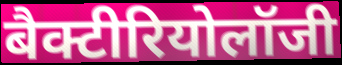
बैक्टीरियोलॉजी